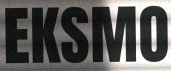
EKSMO